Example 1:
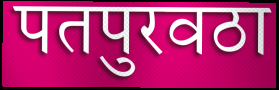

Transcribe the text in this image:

पतपुरवठा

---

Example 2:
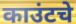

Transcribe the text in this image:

काउंटचे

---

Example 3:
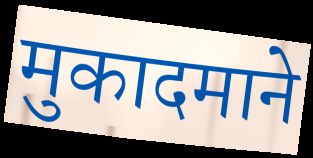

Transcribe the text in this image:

मुकादमाने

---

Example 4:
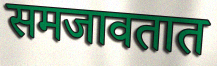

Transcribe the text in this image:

समजावतात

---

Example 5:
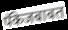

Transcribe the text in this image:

पॅकेजबाबत